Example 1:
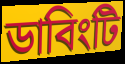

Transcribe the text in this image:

ডাবিংটি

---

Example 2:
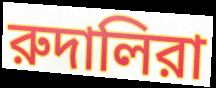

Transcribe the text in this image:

রুদালিরা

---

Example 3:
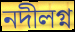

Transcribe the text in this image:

নদীলগ্ন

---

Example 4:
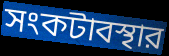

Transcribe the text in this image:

সংকটাবস্থার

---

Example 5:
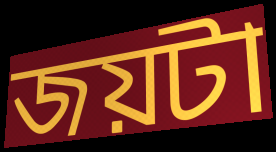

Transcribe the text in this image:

জয়টা